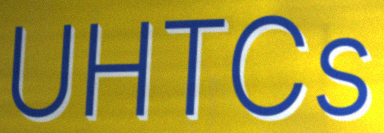
UHTCs